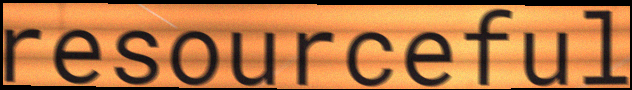
resourceful